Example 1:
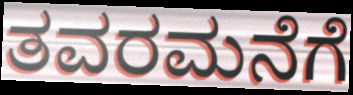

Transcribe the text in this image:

ತವರಮನೆಗೆ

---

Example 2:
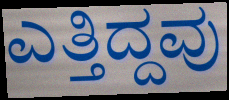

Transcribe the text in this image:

ಎತ್ತಿದ್ದವು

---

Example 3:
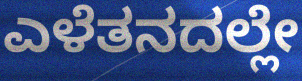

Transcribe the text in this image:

ಎಳೆತನದಲ್ಲೇ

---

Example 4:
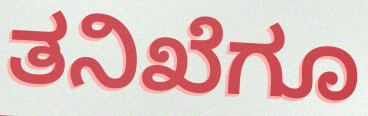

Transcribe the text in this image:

ತನಿಖೆಗೂ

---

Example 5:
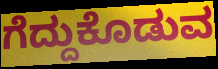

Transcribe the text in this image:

ಗೆದ್ದುಕೊಡುವ